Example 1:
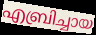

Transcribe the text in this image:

എബ്രിച്ചായ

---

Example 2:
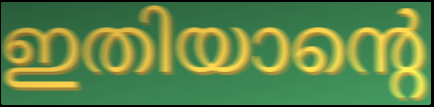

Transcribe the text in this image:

ഇതിയാന്റെ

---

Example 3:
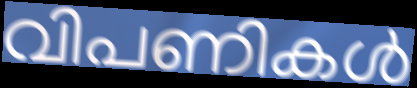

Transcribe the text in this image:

വിപണികൾ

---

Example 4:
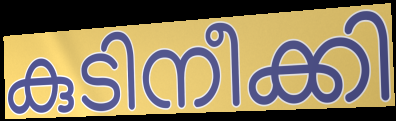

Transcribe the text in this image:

കുടിനീക്കി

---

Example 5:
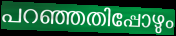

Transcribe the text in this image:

പറഞ്ഞതിപ്പോഴും